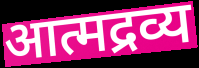
आत्मद्रव्य